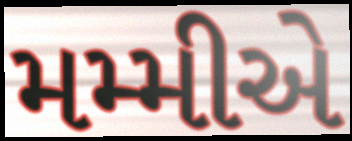
મમ્મીએ